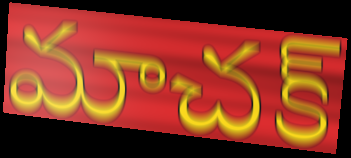
మాచక్